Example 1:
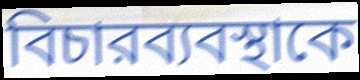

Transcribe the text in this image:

বিচারব্যবস্থাকে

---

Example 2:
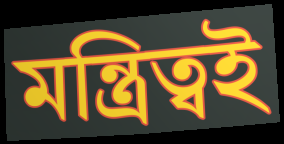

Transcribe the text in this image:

মন্ত্রিত্বই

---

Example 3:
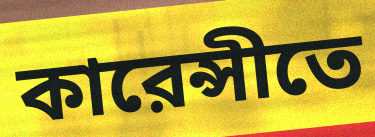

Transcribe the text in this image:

কারেন্সীতে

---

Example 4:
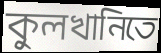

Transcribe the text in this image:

কুলখানিতে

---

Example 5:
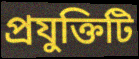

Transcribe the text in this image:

প্রযুক্তিটি